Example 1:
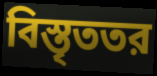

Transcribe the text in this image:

বিস্তৃততর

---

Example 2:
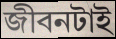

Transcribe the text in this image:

জীবনটাই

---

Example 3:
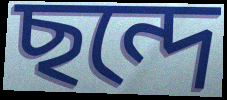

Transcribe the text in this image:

ছন্দে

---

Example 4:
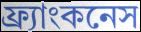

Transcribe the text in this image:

ফ্র্যাংকনেস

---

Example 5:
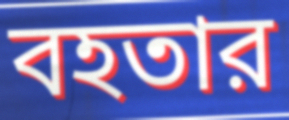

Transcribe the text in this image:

বহতার